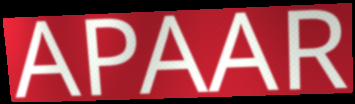
APAAR